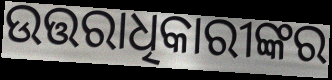
ଉତ୍ତରାଧିକାରୀଙ୍କର